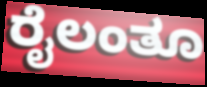
ರೈಲಂತೂ